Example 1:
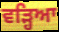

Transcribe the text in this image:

ਵੜ੍ਹਿਆ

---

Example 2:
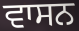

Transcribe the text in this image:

ਵਾਸਨ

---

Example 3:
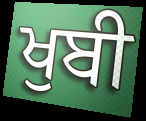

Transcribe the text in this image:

ਖੁਬੀ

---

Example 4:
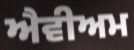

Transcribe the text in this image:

ਐਵੀਅਮ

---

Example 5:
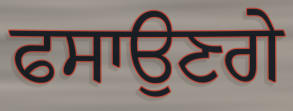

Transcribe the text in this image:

ਫਸਾਉਣਗੇ